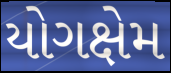
યોગક્ષેમ